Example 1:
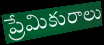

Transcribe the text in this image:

ప్రేమికురాలు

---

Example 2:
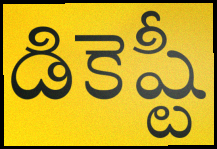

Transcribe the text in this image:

డికెష్టీ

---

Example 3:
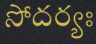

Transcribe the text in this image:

సోదర్యః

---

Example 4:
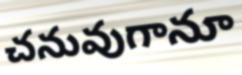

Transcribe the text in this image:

చనువుగానూ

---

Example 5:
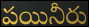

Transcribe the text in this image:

పయినీరు